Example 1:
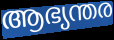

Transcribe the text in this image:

ആഭ്യന്തര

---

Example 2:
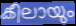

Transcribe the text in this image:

കീലായും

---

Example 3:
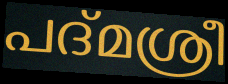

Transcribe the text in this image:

പദ്മശ്രീ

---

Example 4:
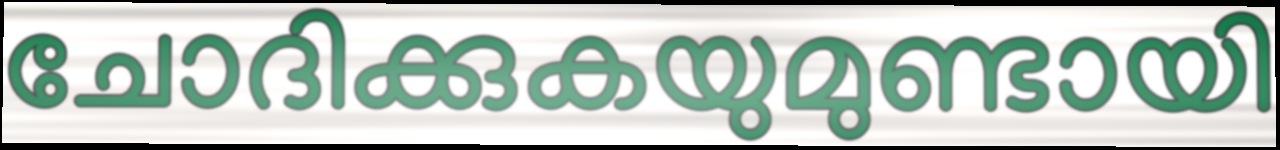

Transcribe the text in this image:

ചോദിക്കുകയുമുണ്ടായി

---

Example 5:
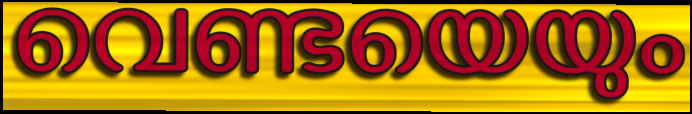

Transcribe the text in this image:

വെണ്ടയെയും